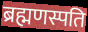
ब्रह्मणस्पति